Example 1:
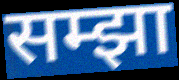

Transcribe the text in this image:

सम्झा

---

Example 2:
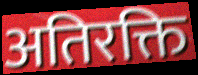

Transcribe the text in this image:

अतिरक्ति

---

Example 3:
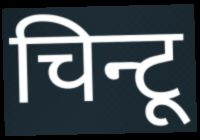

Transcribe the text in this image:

चिन्टू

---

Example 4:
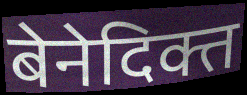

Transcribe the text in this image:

बेनेदिक्त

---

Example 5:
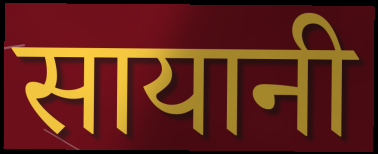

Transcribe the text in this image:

सायानी